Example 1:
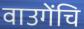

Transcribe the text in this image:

वाउगेंचि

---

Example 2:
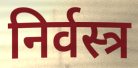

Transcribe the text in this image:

निर्वस्त्र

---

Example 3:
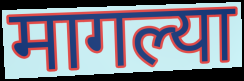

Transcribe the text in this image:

मागल्या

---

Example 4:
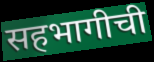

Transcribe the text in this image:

सहभागीची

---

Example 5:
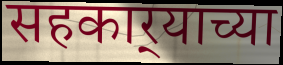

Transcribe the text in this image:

सहकार्याच्या